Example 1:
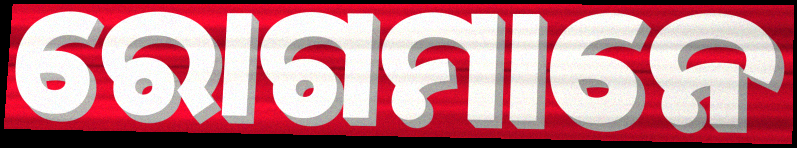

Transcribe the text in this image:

ରୋଗମାନେ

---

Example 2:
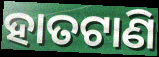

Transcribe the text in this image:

ହାତଟାଣି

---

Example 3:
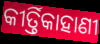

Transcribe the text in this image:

କୀର୍ତ୍ତିକାହାଣୀ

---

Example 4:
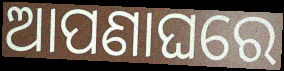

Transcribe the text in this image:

ଆପଣାଘରେ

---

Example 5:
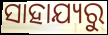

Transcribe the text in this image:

ସାହାଯ୍ୟରୁ